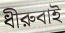
ধীরুবাই